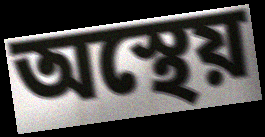
অস্থেয়